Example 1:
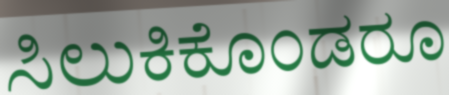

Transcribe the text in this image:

ಸಿಲುಕಿಕೊಂಡರೂ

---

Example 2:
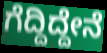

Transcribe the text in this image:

ಗೆದ್ದಿದ್ದೇನೆ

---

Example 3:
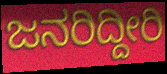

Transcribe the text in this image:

ಜನರಿದ್ದೀರಿ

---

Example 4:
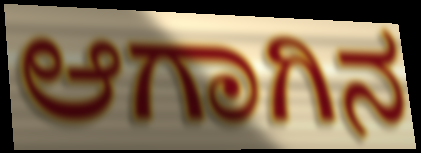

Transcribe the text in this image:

ಆಗಾಗಿನ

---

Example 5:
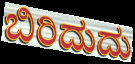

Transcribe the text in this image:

ಬಿರಿದುದು